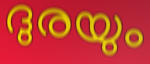
ദുരയും